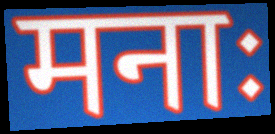
मनाः